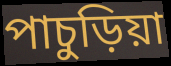
পাচুড়িয়া